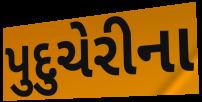
પુદુચેરીના